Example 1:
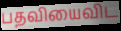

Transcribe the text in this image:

பதவியைவிட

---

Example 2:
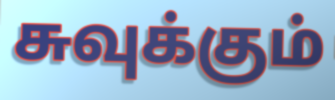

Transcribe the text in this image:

சுவுக்கும்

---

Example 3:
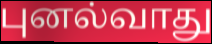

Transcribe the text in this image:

புனல்வாது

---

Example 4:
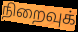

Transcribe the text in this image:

நிறைவுக்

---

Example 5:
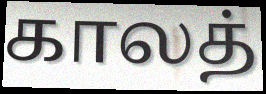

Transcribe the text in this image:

காலத்